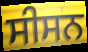
ਸੀਸਨ